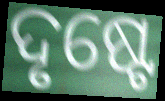
ଦୃଷ୍ଟେ